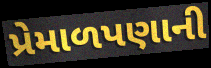
પ્રેમાળપણાની